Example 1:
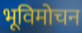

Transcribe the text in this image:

भूविमोचन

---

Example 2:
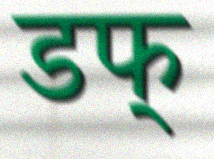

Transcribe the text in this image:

डफ्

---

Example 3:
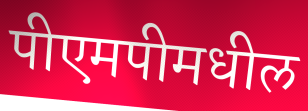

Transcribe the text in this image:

पीएमपीमधील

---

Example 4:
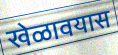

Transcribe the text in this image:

खेळावयास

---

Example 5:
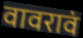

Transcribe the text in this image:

वावरावं